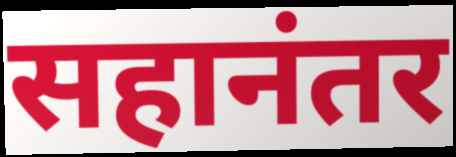
सहानंतर